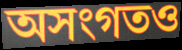
অসংগতও